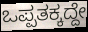
ಒಪ್ಪತಕ್ಕದ್ದೇ